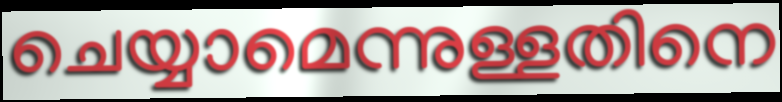
ചെയ്യാമെന്നുള്ളതിനെ